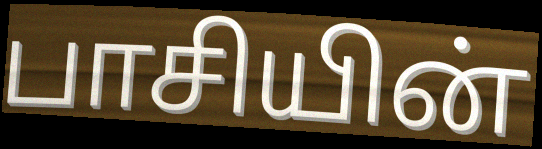
பாசியின்